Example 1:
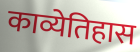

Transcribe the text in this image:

काव्येतिहास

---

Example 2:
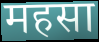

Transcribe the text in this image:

महसा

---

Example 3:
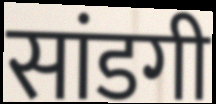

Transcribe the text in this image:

सांडगी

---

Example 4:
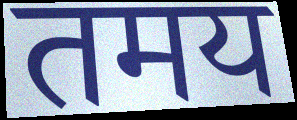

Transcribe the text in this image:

तमय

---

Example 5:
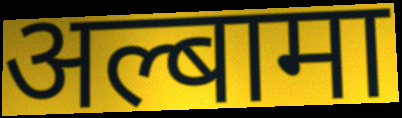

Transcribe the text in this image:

अल्बामा